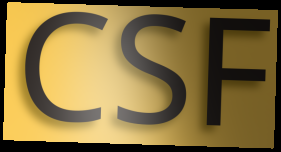
CSF